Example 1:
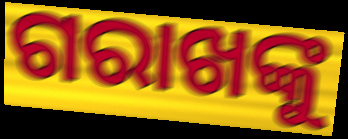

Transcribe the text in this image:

ଗରାଖଙ୍କୁ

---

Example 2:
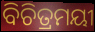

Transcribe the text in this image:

ବିଚିତ୍ରମୟୀ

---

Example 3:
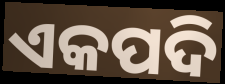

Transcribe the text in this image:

ଏକପଦି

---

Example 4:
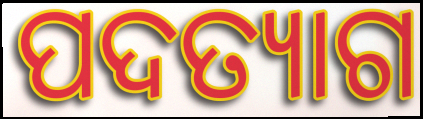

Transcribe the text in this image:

ପଦତ୍ୟାଗ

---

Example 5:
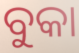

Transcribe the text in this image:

ବୁକା